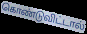
கொண்டுவிட்டால்